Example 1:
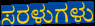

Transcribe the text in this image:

ಸರಳುಗಳು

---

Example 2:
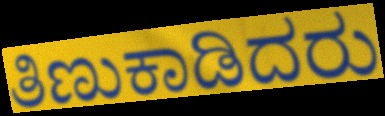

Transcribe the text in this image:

ತಿಣುಕಾಡಿದರು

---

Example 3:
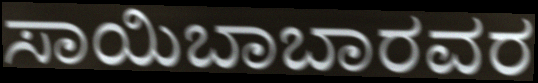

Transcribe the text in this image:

ಸಾಯಿಬಾಬಾರವರ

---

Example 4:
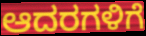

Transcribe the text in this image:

ಆದರಗಳಿಗೆ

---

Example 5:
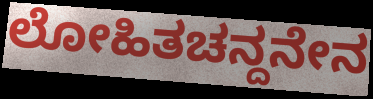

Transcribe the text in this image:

ಲೋಹಿತಚನ್ದನೇನ